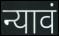
न्यावं